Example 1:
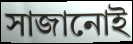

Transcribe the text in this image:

সাজানোই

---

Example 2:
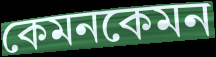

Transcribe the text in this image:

কেমনকেমন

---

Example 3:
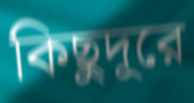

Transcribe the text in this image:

কিছুদূরে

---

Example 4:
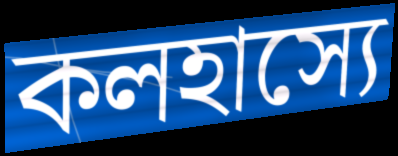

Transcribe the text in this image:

কলহাস্যে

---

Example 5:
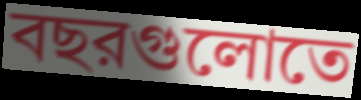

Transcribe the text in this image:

বছরগুলোতে